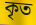
কৃত